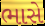
ભાસે